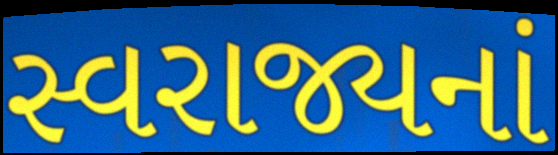
સ્વરાજ્યનાં